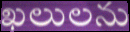
ఖలులను